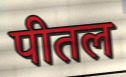
पीतल